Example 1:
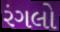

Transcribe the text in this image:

રંગલો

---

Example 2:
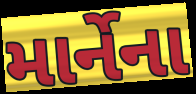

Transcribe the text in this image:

માર્નેના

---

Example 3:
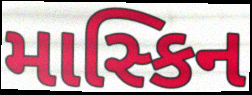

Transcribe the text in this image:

માસ્કિન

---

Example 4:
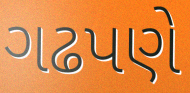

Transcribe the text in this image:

ગઢપણે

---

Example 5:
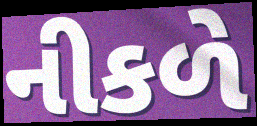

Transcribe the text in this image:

નીકળે